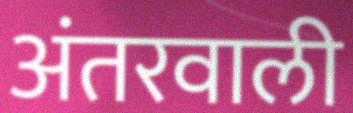
अंतरवाली